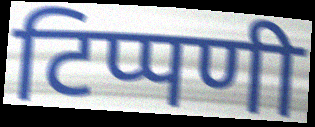
टिप्पणी